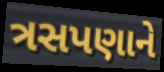
ત્રસપણાને